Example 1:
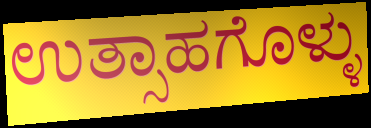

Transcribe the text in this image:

ಉತ್ಸಾಹಗೊಳ್ಳು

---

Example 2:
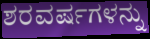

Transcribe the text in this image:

ಶರವರ್ಷಗಳನ್ನು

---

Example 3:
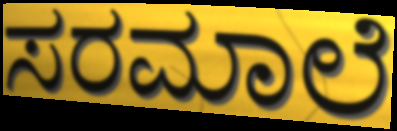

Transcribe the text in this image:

ಸರಮಾಲೆ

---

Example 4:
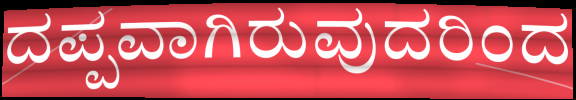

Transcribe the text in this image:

ದಪ್ಪವಾಗಿರುವುದರಿಂದ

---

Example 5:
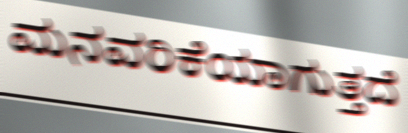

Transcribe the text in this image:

ಮನವರಿಕೆಯಾಗುತ್ತದೆ